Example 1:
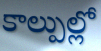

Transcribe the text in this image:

కాల్పుల్లో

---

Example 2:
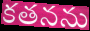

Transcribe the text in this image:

కతనను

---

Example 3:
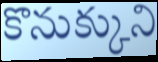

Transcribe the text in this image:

కొనుక్కుని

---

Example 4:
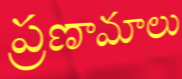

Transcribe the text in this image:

ప్రణామాలు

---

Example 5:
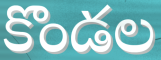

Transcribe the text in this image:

కొండల